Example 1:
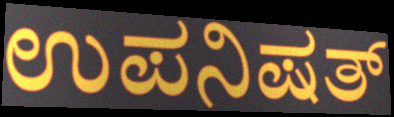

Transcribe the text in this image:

ಉಪನಿಷತ್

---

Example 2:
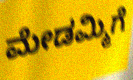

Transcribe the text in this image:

ಮೇಡಮ್ಮಿಗೆ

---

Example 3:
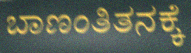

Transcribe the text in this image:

ಬಾಣಂತಿತನಕ್ಕೆ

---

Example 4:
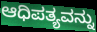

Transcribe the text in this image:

ಆಧಿಪತ್ಯವನ್ನು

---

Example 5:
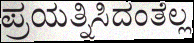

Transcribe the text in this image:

ಪ್ರಯತ್ನಿಸಿದಂತೆಲ್ಲ